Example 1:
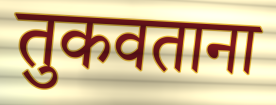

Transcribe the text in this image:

तुकवताना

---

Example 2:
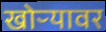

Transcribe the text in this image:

खोऱ्यावर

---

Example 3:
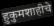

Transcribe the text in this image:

हुकुमशाहीचे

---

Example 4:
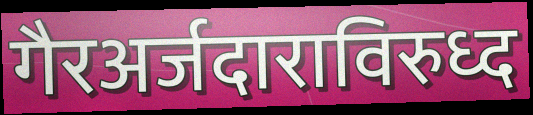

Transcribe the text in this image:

गैरअर्जदाराविरुध्द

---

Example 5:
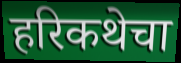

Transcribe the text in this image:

हरिकथेचा